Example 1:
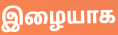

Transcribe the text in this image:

இழையாக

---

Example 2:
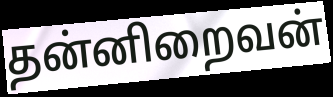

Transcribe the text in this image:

தன்னிறைவன்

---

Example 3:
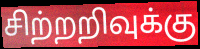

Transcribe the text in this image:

சிற்றறிவுக்கு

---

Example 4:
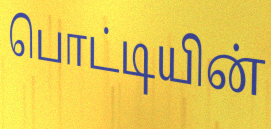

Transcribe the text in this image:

பொட்டியின்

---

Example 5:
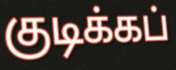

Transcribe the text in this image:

குடிக்கப்